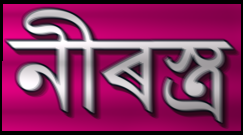
নীৰস্ত্ৰ